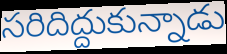
సరిదిద్దుకున్నాడు